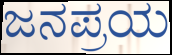
ಜನಪ್ರಯ